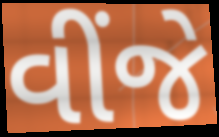
વીંજે